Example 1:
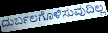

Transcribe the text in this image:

ದುರ್ಬಲಗೊಳಿಸುವುದಿಲ್ಲ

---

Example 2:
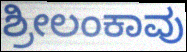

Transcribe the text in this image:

ಶ್ರೀಲಂಕಾವು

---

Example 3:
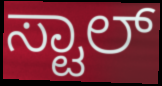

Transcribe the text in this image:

ಸ್ಟಾಲ್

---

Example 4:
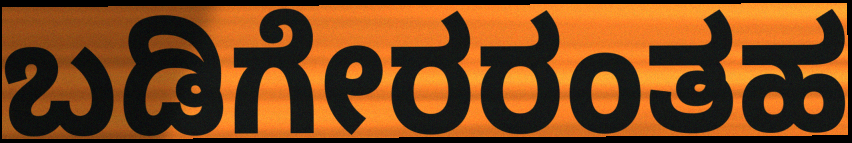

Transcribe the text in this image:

ಬಡಿಗೇರರಂತಹ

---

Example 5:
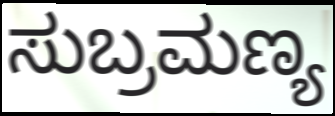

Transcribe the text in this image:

ಸುಬ್ರಮಣ್ಯ